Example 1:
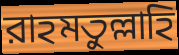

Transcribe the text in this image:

রাহমতুল্লাহি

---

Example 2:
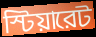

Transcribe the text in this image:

স্টিয়ারেট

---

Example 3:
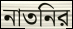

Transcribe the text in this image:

নাতনির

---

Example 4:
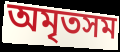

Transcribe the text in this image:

অমৃতসম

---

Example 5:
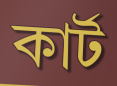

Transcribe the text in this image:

কার্ট